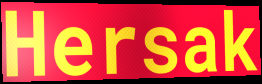
Hersak